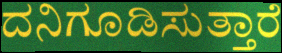
ದನಿಗೂಡಿಸುತ್ತಾರೆ